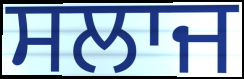
ਸਲਾਜ